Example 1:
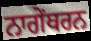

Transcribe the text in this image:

ਨਾਗੇਂਥਰਨ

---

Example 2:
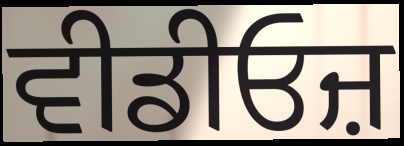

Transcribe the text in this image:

ਵੀਡੀਓਜ਼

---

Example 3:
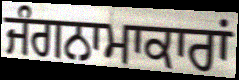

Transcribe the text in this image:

ਜੰਗਨਾਮਾਕਾਰਾਂ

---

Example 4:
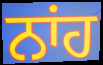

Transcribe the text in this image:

ਨਾਂਹ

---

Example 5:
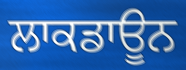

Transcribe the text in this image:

ਲਾਕਡਾਊਨ